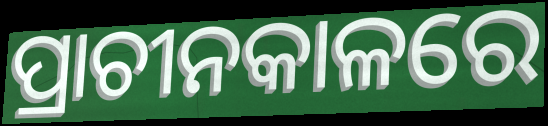
ପ୍ରାଚୀନକାଳରେ